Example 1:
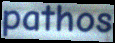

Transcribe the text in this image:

pathos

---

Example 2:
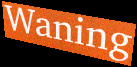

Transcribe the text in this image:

Waning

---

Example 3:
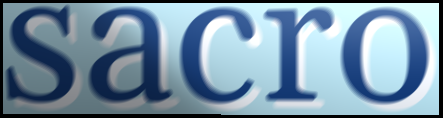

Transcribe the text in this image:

sacro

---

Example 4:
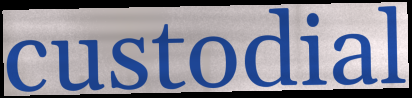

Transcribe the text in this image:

custodial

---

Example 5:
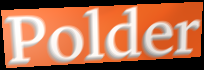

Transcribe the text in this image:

Polder